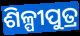
ଶିଳ୍ପୀପୁତ୍ର